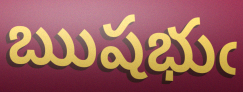
ఋషభుఁ